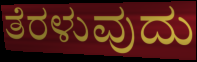
ತೆರಳುವುದು